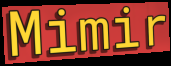
Mimir